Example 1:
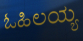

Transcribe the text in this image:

ಓಹಿಲಯ್ಯ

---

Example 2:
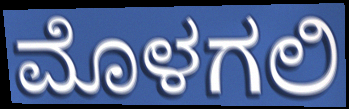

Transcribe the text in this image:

ಮೊಳಗಲಿ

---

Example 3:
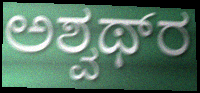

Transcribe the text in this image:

ಅಶ್ವಥ್‌ರ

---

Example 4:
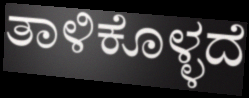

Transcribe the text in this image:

ತಾಳಿಕೊಳ್ಳದೆ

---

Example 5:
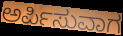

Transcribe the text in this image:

ಅರ್ಪಿಸುವಾಗ